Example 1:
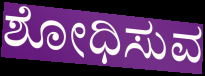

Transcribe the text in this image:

ಶೋಧಿಸುವ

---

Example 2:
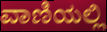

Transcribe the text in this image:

ವಾಣಿಯಲ್ಲಿ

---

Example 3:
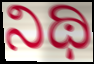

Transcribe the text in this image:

ನಿಥಿ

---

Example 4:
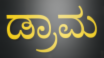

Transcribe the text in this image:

ಡ್ರಾಮ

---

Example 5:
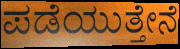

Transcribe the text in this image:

ಪಡೆಯುತ್ತೇನೆ